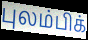
புலம்பிக்